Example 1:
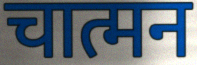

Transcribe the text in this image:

चात्मन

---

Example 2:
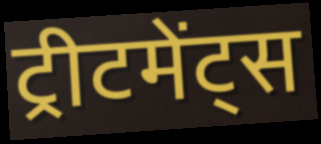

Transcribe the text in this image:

ट्रीटमेंट्स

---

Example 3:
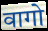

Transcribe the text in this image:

वागो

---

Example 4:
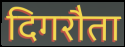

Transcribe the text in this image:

दिगरौता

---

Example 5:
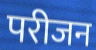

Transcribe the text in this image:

परीजन